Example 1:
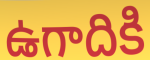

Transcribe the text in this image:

ఉగాదికి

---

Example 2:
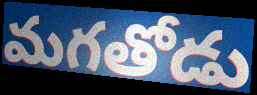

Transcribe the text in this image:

మగతోడు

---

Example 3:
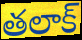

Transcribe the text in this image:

తలాక్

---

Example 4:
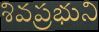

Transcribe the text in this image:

శివప్రభుని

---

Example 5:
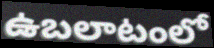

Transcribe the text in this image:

ఉబలాటంలో